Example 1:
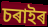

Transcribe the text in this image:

চৰাইৰ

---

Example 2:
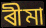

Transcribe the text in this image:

ৰীমা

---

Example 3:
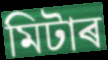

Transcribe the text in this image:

মিটাৰ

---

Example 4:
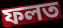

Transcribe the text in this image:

ফলত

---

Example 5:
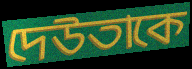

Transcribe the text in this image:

দেউতাকে